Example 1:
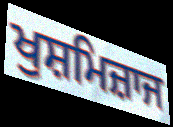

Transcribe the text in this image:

ਖੁਸ਼ਮਿਜ਼ਾਜ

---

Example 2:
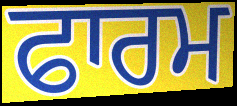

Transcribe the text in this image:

ਫਾਰਮ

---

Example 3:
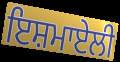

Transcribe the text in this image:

ਇਸ਼ਮਾਏਲੀ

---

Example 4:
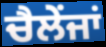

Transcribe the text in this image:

ਚੈਲੇਂਜਾਂ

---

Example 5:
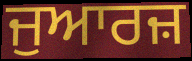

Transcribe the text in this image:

ਜੁਆਰਜ਼